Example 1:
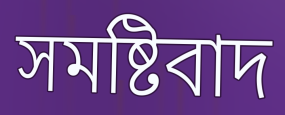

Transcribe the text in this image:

সমষ্টিবাদ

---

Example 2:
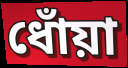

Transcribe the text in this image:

ধোঁয়া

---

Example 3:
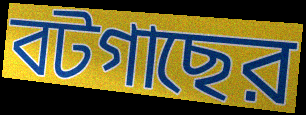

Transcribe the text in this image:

বটগাছের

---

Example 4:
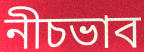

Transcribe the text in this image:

নীচভাব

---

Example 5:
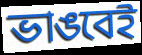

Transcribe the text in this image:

ভাঙবেই